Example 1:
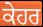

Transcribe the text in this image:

ਕੇਹਰ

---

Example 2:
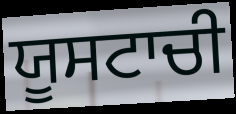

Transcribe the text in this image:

ਯੂਸਟਾਚੀ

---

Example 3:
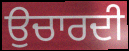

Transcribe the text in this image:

ਉਚਾਰਦੀ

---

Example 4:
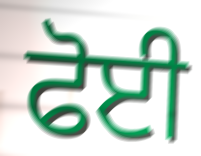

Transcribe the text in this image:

ਫੋਈ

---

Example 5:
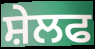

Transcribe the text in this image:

ਸ਼ੇਲਫ